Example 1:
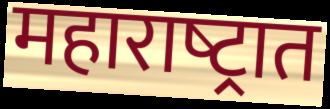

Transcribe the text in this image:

महाराष्‍ट्रात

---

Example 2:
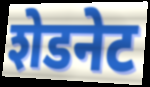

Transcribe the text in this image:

शेडनेट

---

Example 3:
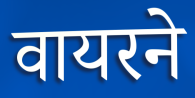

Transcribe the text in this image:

वायरने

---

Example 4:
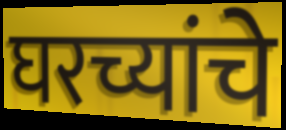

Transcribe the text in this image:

घरच्यांचे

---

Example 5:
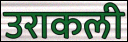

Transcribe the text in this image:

उराकली